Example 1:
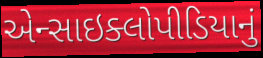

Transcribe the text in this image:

એન્સાઇક્લોપીડિયાનું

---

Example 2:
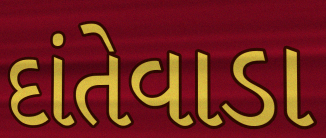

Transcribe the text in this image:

દાંતેવાડા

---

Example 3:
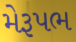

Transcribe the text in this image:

મેરૂપભ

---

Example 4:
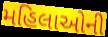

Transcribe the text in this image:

મહિલાઓની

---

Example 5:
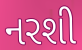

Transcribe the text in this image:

નરશી